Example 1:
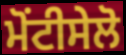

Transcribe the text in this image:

ਮੋਂਟੀਸੇਲੋ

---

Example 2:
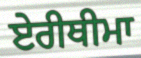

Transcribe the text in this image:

ਏਰੀਥੀਮਾ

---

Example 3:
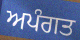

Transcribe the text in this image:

ਅਪੰਗਤ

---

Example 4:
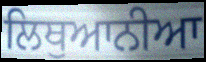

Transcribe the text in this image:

ਲਿਥੁਆਨੀਆ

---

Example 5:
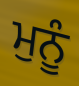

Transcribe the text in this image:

ਮੁਨੂੰ